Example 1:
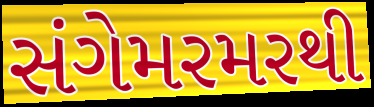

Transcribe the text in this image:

સંગેમરમરથી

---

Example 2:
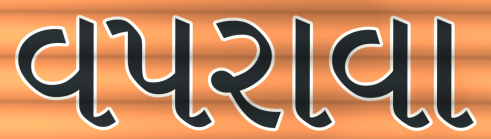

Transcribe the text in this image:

વપરાવા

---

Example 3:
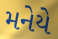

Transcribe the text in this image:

મનેયે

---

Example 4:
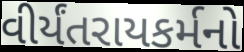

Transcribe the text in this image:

વીર્યંતરાયકર્મનો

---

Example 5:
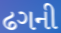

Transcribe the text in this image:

ઢગની